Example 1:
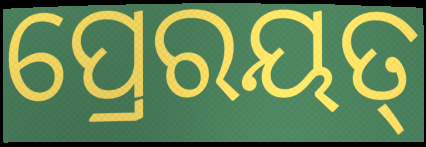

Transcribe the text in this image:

ପ୍ରେରୟତ୍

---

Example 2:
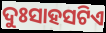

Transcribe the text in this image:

ଦୁଃସାହସଟିଏ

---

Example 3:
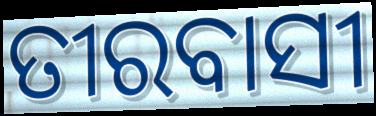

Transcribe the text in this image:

ତୀରବାସୀ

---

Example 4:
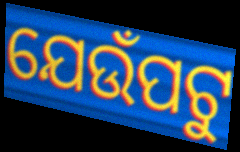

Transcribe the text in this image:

ଯେଉଁପଟୁ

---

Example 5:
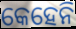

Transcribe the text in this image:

କେହେନି